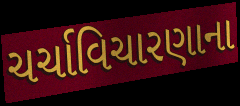
ચર્ચાવિચારણાના